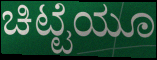
ಚಿಟ್ಟೆಯೂ